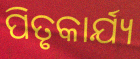
ପିତୃକାର୍ଯ୍ୟ